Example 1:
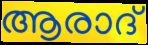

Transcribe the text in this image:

ആരാദ്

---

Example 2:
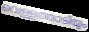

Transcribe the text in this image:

വെള്ളത്താടിയും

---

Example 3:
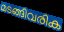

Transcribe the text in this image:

മടങ്ങിവരിക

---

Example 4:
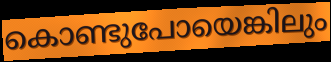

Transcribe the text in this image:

കൊണ്ടുപോയെങ്കിലും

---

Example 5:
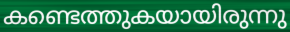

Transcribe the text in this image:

കണ്ടെത്തുകയായിരുന്നു